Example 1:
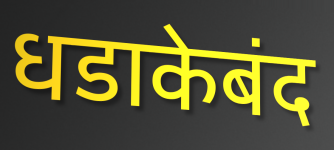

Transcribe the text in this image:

धडाकेबंद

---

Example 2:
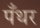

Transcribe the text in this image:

पँथर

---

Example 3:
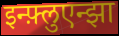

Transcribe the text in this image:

इन्फ़्लुएन्झा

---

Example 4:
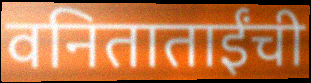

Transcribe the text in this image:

वनिताताईंची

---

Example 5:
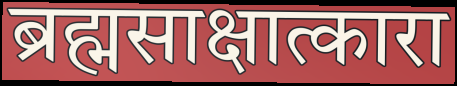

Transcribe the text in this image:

ब्रह्मसाक्षात्कारा